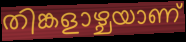
തിങ്കളാഴ്ചയാണ്